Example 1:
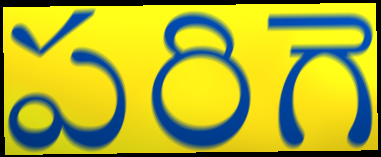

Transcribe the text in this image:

పరిగె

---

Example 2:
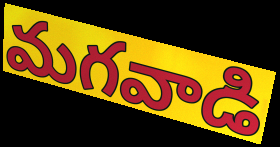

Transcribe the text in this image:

మగవాడి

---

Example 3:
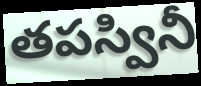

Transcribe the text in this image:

తపస్వినీ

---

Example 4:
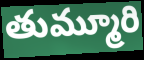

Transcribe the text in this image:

తుమ్మూరి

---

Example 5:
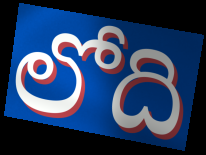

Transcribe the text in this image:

లోది